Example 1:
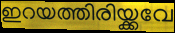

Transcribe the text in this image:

ഇറയത്തിരിയ്ക്കവേ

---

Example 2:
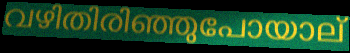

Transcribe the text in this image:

വഴിതിരിഞ്ഞുപോയാല്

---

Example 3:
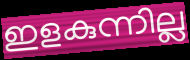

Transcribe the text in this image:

ഇളകുന്നില്ല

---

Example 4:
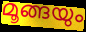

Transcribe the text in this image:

മൂങ്ങയും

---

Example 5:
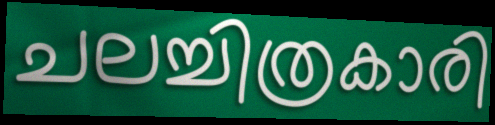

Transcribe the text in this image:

ചലച്ചിത്രകാരി